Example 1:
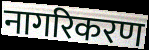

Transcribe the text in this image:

नागरिकरण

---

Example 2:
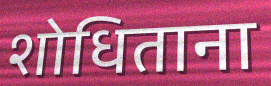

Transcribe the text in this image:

शोधिताना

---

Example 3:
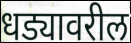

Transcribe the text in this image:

धड्यावरील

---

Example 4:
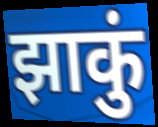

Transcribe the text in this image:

झाकुं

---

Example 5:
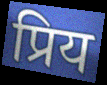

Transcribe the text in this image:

प्रिय